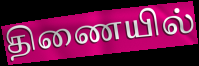
திணையில்